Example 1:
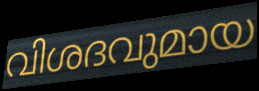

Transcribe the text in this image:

വിശദവുമായ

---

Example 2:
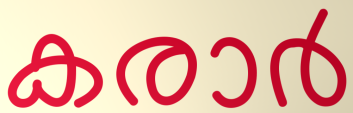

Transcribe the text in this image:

കരാർ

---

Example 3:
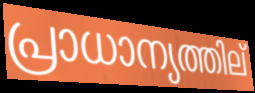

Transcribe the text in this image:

പ്രാധാന്യത്തില്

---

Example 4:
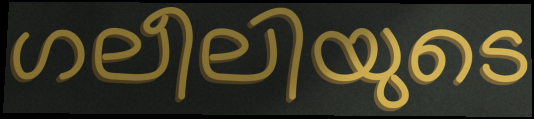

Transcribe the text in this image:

ഗലീലിയുടെ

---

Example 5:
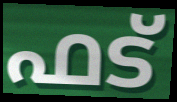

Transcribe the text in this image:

ഫട്